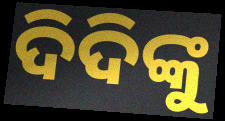
ଦିଦିଙ୍କୁ